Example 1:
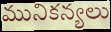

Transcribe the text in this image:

మునికన్యలు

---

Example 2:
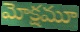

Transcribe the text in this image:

మోక్షమూ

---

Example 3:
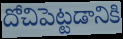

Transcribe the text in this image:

దోచిపెట్టడానికి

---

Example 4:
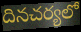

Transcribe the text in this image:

దినచర్యలో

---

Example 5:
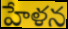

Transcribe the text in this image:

హేళన